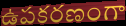
ఉపకరణంగా